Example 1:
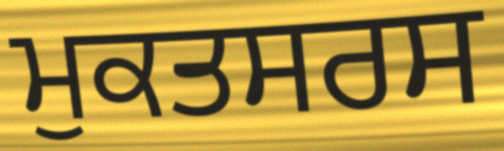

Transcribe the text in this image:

ਮੁਕਤਸਰਸ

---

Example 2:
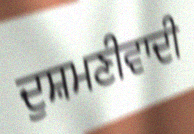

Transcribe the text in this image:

ਦੁਸ਼ਮਣੀਵਾਦੀ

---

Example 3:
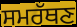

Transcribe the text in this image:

ਸਮਰੱਥਣ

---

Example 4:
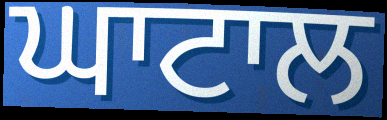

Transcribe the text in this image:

ਘਾਟਾਲ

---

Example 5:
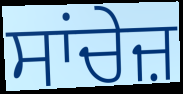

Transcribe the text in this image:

ਸਾਂਚੇਜ਼